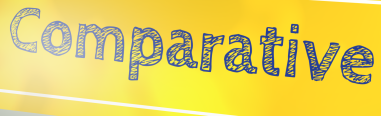
Comparative